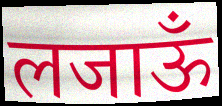
लजाऊँ